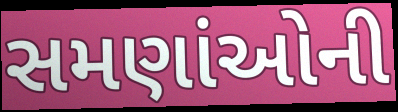
સમણાંઓની